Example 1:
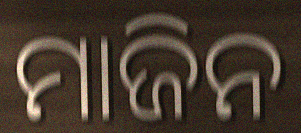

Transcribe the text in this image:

ମାଜିନ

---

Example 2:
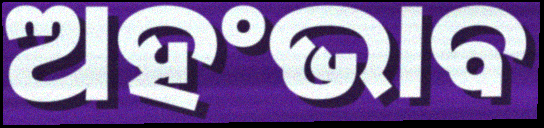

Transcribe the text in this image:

ଅହଂଭାବ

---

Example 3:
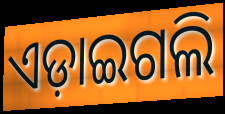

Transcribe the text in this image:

ଏଡ଼ାଇଗଲି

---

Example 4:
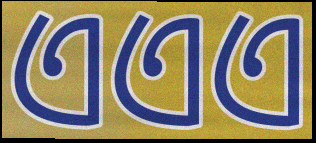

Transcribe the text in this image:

ଏଏଏ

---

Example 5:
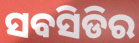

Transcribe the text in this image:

ସବସିଡିର